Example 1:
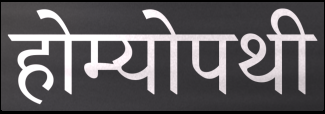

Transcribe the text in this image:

होम्योपथी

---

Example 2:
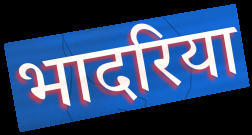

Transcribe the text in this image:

भादरिया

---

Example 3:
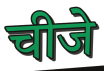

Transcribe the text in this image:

चीजे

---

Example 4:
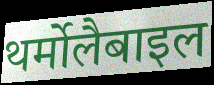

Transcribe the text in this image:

थर्मोलैबाइल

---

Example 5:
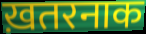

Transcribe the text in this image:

ख़तरनाक